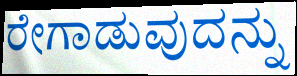
ರೇಗಾಡುವುದನ್ನು